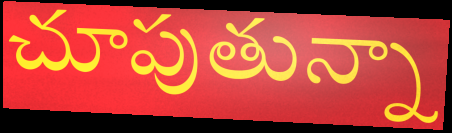
చూపుతున్నా